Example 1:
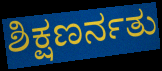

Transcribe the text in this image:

ಶಿಕ್ಷಣರ್ನತು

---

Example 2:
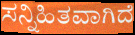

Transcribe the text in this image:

ಸನ್ನಿಹಿತವಾಗಿದೆ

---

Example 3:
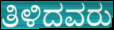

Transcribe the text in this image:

ತಿಳಿದವರು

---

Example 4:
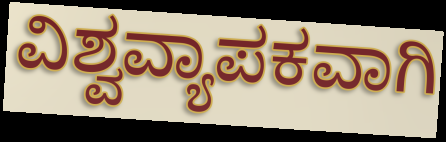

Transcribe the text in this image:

ವಿಶ್ವವ್ಯಾಪಕವಾಗಿ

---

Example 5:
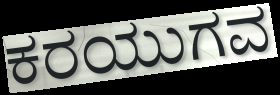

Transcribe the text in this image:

ಕರಯುಗವ